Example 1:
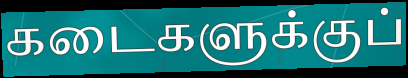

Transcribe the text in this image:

கடைகளுக்குப்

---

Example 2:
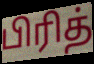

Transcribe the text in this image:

பிரித்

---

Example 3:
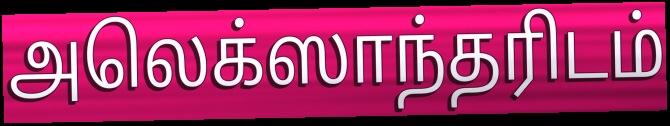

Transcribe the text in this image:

அலெக்ஸாந்தரிடம்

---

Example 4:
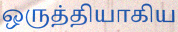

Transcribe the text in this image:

ஒருத்தியாகிய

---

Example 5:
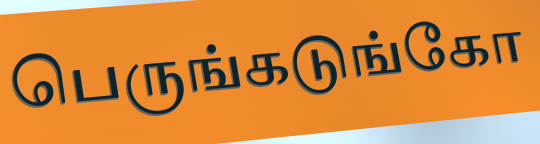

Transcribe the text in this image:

பெருங்கடுங்கோ